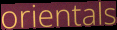
orientals